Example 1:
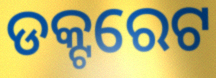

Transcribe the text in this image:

ଡକ୍ଟରେଟ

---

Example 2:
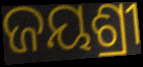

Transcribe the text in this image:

ଜୟଶ୍ରୀ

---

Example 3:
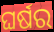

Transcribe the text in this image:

ଘର୍ଷର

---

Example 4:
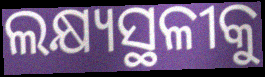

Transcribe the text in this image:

ଲକ୍ଷ୍ୟସ୍ଥଳୀକୁ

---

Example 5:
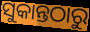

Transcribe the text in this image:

ସୁକାନ୍ତଠାରୁ